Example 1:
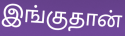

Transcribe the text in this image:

இங்குதான்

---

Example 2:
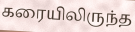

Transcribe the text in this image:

கரையிலிருந்த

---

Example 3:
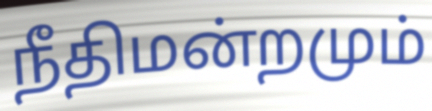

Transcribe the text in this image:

நீதிமன்றமும்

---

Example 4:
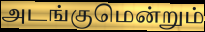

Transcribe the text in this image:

அடங்குமென்றும்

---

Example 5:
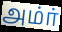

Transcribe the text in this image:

அம்ர்